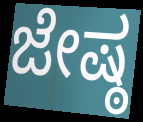
ಜೇಷ್ಠ